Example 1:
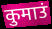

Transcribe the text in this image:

कुमाउं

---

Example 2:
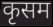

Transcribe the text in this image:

कृसम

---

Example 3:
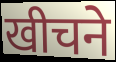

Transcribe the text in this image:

खीचने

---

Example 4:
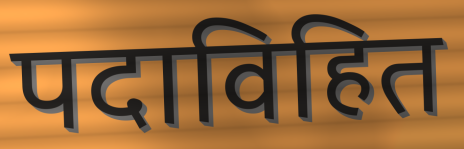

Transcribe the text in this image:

पदाविहित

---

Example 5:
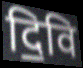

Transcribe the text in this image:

दि॒वि